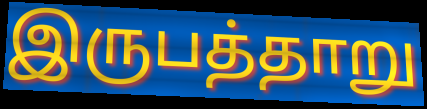
இருபத்தாறு